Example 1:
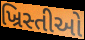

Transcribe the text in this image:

ખ્રિસ્તીઓ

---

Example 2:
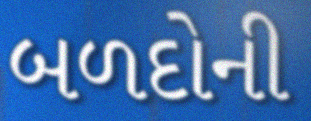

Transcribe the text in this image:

બળદોની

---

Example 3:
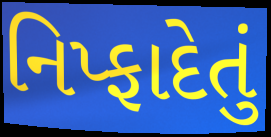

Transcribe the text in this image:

નિપ્ફાદેતું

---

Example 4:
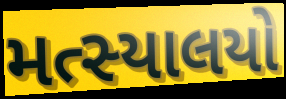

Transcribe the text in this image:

મત્સ્યાલયો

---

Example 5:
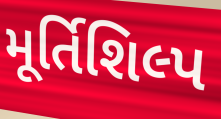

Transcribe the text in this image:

મૂર્તિશિલ્પ